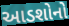
આડશોનો